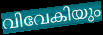
വിവേകിയും